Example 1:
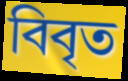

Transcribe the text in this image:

বিবৃত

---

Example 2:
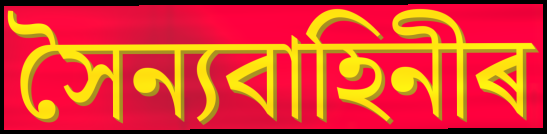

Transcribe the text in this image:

সৈন্যবাহিনীৰ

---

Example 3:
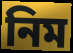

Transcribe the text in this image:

নিম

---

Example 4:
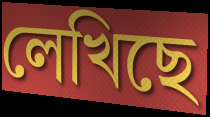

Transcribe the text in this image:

লেখিছে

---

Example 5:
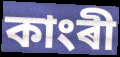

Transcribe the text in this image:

কাংৰী